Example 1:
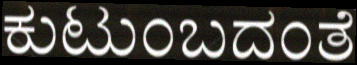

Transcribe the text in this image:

ಕುಟುಂಬದಂತೆ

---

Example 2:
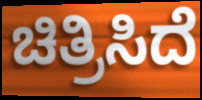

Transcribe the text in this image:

ಚಿತ್ರಿಸಿದೆ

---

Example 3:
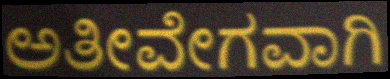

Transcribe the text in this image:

ಅತೀವೇಗವಾಗಿ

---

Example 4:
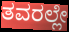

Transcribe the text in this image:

ತವರಲ್ಲೇ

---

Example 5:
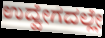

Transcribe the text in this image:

ಉದ್ವೇಗದಲ್ಲೇ